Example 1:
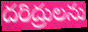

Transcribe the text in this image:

దరిద్రులను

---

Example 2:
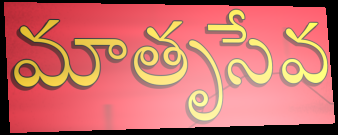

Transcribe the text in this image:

మాతృసేవ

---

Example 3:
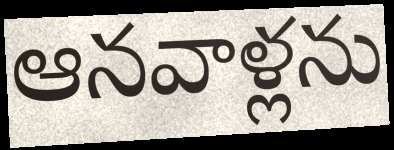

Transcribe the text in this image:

ఆనవాళ్లను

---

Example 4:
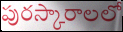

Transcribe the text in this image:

పురస్కారాలలో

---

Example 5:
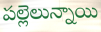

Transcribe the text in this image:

పల్లెలున్నాయి